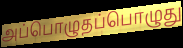
அப்பொழுதப்பொழுது